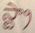
స్ట్రా